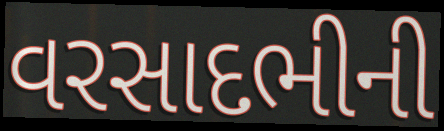
વરસાદભીની